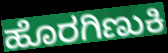
ಹೊರಗಿಣುಕಿ